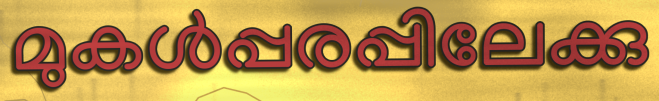
മുകൾപ്പരപ്പിലേക്കു